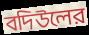
বদিউলের